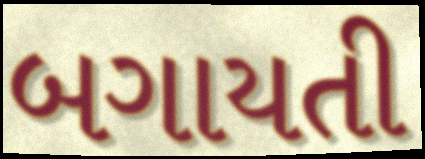
બગાયતી